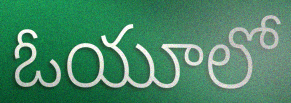
ఓయూలో